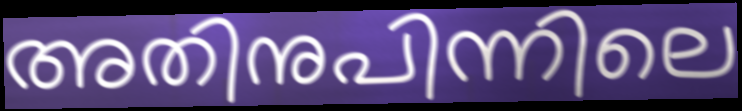
അതിനുപിന്നിലെ